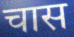
चास